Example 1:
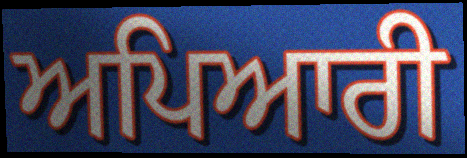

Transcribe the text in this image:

ਅਪਿਆਰੀ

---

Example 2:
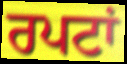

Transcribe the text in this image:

ਰਪਟਾਂ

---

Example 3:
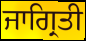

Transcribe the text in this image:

ਜਾਗ੍ਰਿਤੀ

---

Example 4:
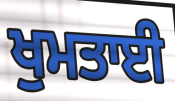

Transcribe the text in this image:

ਖੁਮਤਾਈ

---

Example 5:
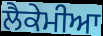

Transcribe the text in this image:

ਲੈਕੇਮੀਆ